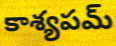
కాశ్యపమ్